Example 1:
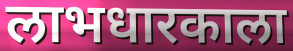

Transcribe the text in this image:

लाभधारकाला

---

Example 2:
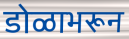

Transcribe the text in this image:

डोळाभरून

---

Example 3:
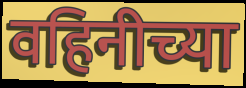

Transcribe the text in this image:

वहिनीच्या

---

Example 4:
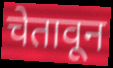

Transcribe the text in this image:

चेतावून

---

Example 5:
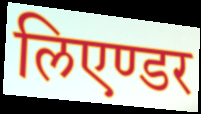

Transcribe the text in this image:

लिएण्डर